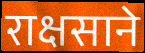
राक्षसाने